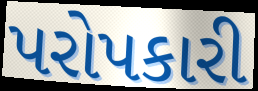
પરોપકારી